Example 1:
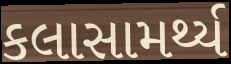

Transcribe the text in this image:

કલાસામર્થ્ય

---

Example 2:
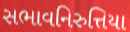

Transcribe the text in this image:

સભાવનિરુત્તિયા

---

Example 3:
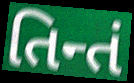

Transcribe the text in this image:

તિન્તં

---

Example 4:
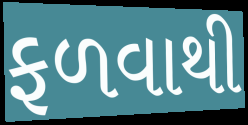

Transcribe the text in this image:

ફળવાથી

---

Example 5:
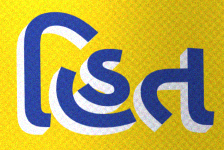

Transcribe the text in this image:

હિત